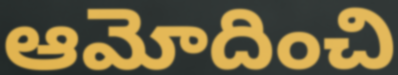
ఆమోదించి